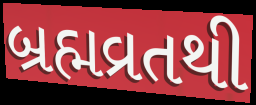
બ્રહ્મવ્રતથી